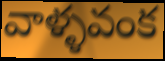
వాళ్ళవంక